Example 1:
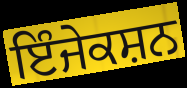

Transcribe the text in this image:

ਇੰਜੇਕਸ਼ਨ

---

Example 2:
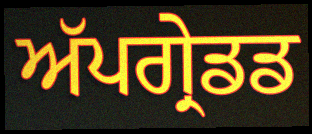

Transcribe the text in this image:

ਅੱਪਗ੍ਰੇਡਡ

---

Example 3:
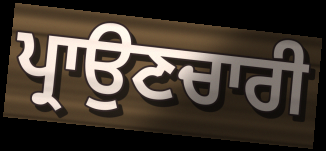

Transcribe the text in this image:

ਪ੍ਰਾਉਣਚਾਰੀ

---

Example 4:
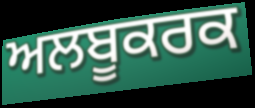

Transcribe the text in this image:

ਅਲਬੂਕਰਕ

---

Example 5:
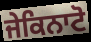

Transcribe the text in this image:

ਜੇਕਿਨਾਟੋ